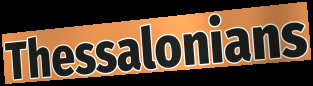
Thessalonians